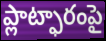
ప్లాట్ఫారంపై